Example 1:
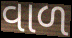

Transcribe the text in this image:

વાળ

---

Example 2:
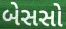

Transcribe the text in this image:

બેસસો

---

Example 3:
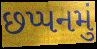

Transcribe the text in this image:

છપ્પનમું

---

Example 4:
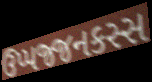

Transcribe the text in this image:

ઉપ્પજ્જનકસ્સ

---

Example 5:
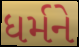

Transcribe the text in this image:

ધર્મને